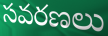
సవరణలు